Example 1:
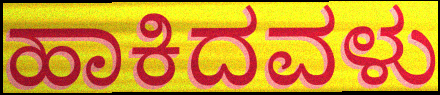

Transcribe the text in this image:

ಹಾಕಿದವಳು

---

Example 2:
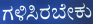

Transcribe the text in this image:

ಗಳಿಸಿರಬೇಕು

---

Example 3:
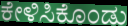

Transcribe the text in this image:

ಕೇಳಿಸಿಕೊಂಡು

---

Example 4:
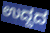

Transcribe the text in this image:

ಉದ್ದದ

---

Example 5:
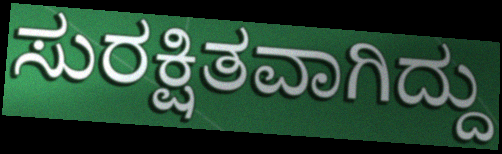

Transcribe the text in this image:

ಸುರಕ್ಷಿತವಾಗಿದ್ದು